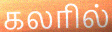
கலரில்